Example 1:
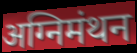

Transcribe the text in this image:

अग्निमंथन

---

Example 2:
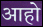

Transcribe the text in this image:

आहो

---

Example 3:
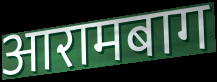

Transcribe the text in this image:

आरामबाग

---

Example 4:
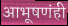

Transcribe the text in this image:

आभूषणंही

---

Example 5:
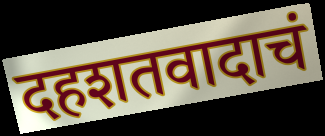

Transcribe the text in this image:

दहशतवादाचं